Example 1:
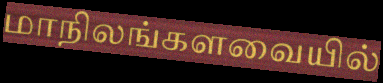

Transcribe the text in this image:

மாநிலங்களவையில்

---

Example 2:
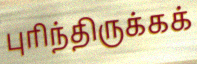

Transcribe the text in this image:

புரிந்திருக்கக்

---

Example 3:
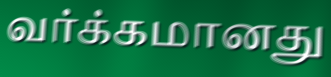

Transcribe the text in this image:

வர்க்கமானது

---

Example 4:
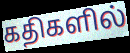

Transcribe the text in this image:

கதிகளில்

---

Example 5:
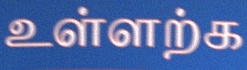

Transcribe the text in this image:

உள்ளற்க